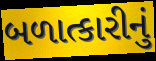
બળાત્કારીનું